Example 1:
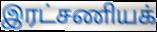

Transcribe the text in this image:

இரட்சணியக்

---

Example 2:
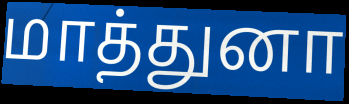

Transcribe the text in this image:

மாத்துனா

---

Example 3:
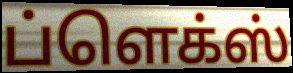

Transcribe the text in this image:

ப்ளெக்ஸ்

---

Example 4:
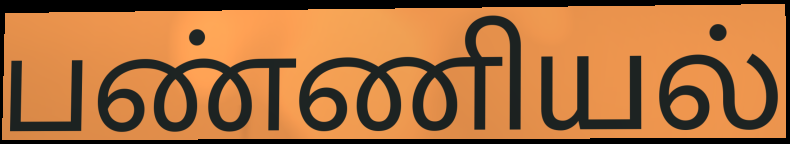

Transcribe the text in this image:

பண்ணியல்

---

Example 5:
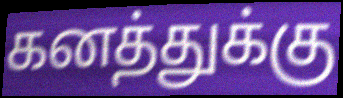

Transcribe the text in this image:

கனத்துக்கு